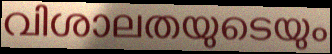
വിശാലതയുടെയും